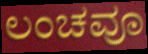
ಲಂಚವೂ